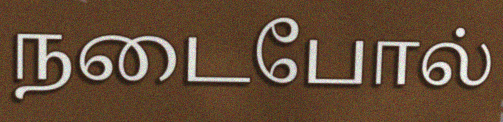
நடைபோல்